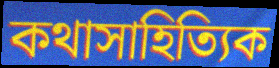
কথাসাহিত্যিক